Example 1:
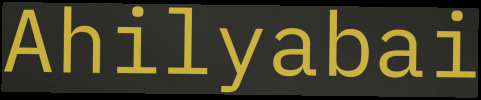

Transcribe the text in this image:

Ahilyabai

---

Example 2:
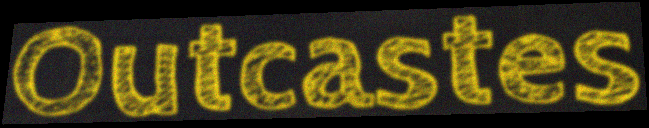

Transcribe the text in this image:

Outcastes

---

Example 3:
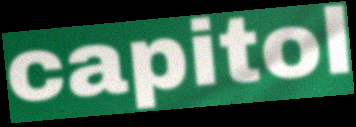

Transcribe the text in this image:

capitol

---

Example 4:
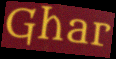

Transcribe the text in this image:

Ghar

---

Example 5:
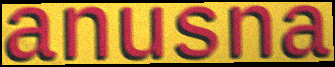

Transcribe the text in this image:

anusna